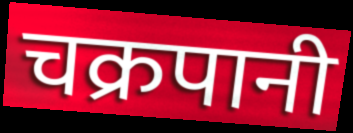
चक्रपानी